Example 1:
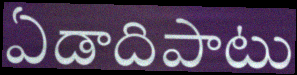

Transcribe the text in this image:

ఏడాదిపాటు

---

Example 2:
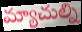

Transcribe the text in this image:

మ్యాచుల్ని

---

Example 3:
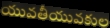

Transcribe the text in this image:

యువతీయువకుల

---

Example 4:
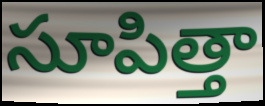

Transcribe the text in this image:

సూపిత్తా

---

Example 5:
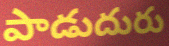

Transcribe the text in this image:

పాడుదురు